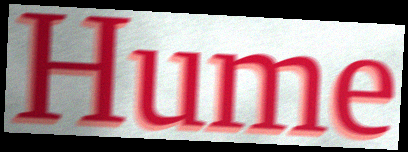
Hume